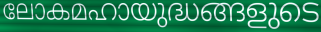
ലോകമഹായുദ്ധങ്ങളുടെ